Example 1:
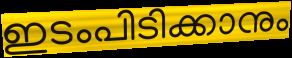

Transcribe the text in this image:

ഇടംപിടിക്കാനും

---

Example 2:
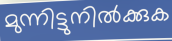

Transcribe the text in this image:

മുന്നിട്ടുനിൽക്കുക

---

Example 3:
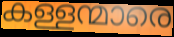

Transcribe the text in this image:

കള്ളന്മാരെ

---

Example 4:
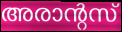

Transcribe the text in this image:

അരാന്റസ്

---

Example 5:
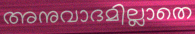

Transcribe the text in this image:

അനുവാദമില്ലാതെ